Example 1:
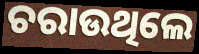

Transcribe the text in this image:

ଚରାଉଥିଲେ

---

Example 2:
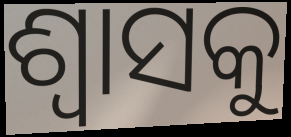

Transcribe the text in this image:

ଶ୍ଵାସକୁ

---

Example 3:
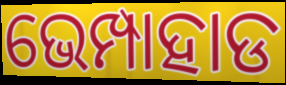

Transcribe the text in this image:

ଭେମ୍ପାହାଡ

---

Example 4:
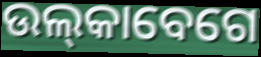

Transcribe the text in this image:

ଉଲ୍‌କାବେଗେ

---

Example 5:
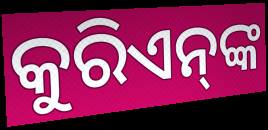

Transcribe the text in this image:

କୁରିଏନ୍‌ଙ୍କ